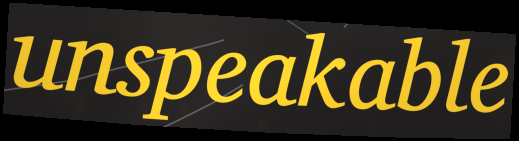
unspeakable